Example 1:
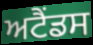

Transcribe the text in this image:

ਅਟੈਂਡਸ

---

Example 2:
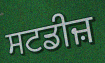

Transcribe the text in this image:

ਸਟਡੀਜ਼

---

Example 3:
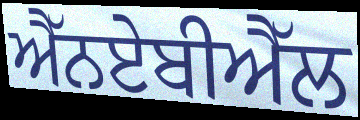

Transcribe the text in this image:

ਐੱਨਏਬੀਐੱਲ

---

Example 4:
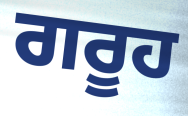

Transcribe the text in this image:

ਗਰੂਹ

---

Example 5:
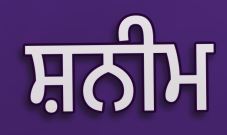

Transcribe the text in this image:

ਸ਼ਨੀਮ